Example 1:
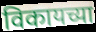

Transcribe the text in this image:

विकायच्या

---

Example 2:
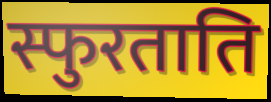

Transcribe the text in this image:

स्फुरताति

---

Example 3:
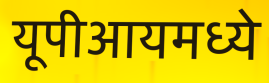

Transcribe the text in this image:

यूपीआयमध्ये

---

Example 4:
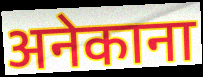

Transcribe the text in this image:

अनेकाना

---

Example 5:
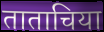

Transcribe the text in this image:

ताताचिया